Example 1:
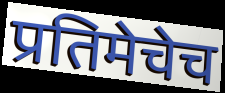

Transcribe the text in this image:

प्रतिमेचेच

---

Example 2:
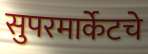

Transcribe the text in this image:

सुपरमार्केटचे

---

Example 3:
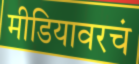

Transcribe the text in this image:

मीडियावरचं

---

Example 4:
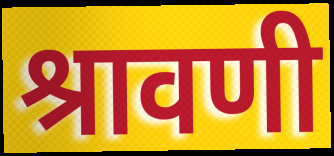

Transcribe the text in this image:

श्रावणी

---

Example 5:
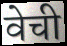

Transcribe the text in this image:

वेची